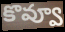
కొవ్వూ